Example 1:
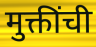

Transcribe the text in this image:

मुक्तींची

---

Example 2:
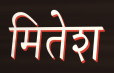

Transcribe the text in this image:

मितेश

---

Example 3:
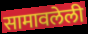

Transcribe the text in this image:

सामावलेली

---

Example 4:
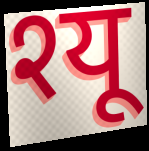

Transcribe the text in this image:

श्यू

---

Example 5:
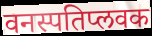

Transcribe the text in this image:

वनस्पतिप्लवक